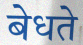
बेधते